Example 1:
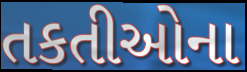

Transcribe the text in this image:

તકતીઓના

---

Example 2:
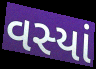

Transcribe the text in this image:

વસ્યાં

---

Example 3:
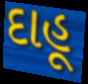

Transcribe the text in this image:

દાહૂ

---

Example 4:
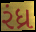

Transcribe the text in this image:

રંધ્ર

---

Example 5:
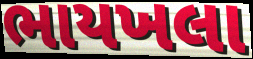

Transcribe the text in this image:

ભાયખલા